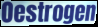
Oestrogen